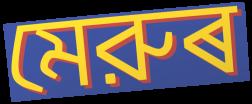
মেৰুৰ